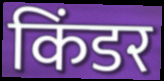
किंडर